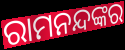
ରାମନନ୍ଦଙ୍କର